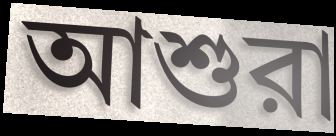
আশুরা